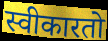
स्वीकारतो